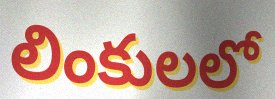
లింకులలో